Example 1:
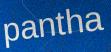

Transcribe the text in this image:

pantha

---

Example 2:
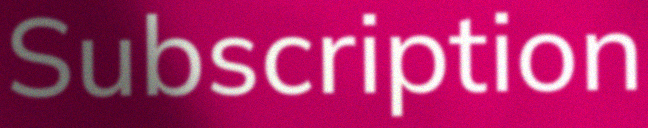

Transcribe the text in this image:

Subscription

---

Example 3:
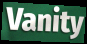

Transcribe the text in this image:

Vanity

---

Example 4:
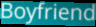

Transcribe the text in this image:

Boyfriend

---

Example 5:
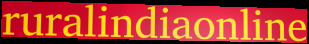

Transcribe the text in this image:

ruralindiaonline